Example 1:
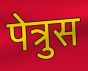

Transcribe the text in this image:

पेत्रुस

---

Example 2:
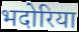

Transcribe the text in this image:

भदोरिया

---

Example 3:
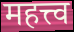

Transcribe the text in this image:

महत्त्व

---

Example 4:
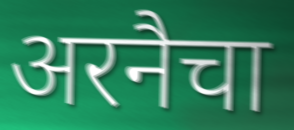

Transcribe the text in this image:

अरनैचा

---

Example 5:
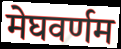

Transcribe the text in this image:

मेघवर्णम